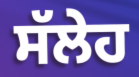
ਸੱਲੇਹ